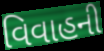
વિવાહની